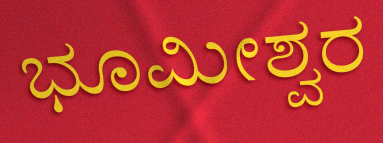
ಭೂಮೀಶ್ವರ